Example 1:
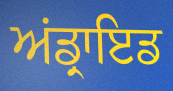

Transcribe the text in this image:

ਅਂਡ੍ਰਾਇਡ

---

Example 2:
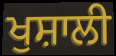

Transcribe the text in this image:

ਖੁਸ਼ਾਲੀ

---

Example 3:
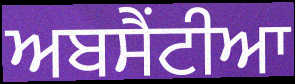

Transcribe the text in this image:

ਅਬਸੈਂਟੀਆ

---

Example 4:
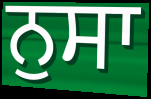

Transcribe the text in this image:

ਨੁਸਾ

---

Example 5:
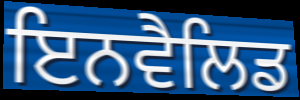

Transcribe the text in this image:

ਇਨਵੈਲਿਡ